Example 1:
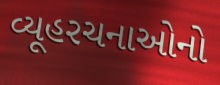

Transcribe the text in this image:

વ્યૂહરચનાઓનો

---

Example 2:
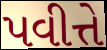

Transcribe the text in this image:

પવીત્તે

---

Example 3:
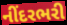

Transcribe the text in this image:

નીંદરભરી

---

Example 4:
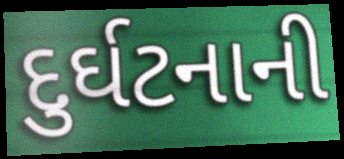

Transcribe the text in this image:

દુર્ઘટનાની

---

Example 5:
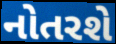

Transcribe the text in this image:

નોતરશે